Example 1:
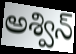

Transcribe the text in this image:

అశ్విన్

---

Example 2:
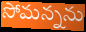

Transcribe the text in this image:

సోమన్నను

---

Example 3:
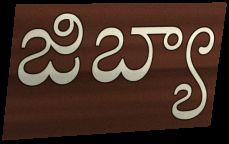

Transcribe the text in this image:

జిబ్యా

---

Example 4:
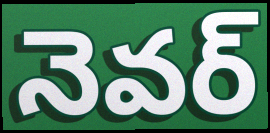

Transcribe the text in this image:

నెవర్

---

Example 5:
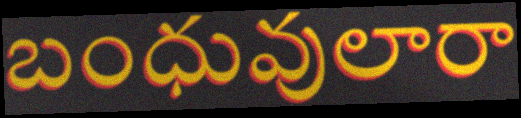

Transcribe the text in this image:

బంధువులారా